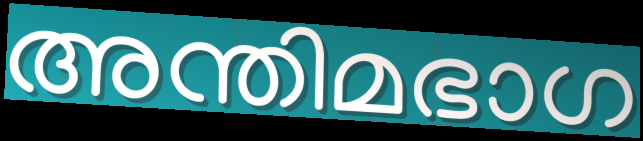
അന്തിമഭാഗ